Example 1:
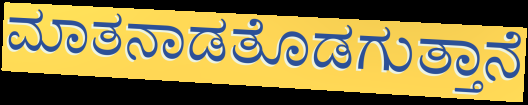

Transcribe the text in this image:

ಮಾತನಾಡತೊಡಗುತ್ತಾನೆ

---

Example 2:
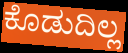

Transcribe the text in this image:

ಕೊಡುದಿಲ್ಲ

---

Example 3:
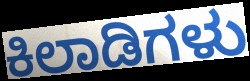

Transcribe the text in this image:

ಕಿಲಾಡಿಗಳು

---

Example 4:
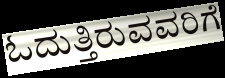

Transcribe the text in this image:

ಓದುತ್ತಿರುವವರಿಗೆ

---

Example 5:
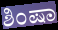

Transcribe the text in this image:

ಶಿಂಷಾ